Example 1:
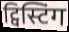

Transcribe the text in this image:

ट्विस्टिंग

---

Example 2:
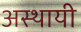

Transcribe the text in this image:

अस्थायी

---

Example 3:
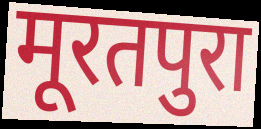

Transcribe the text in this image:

मूरतपुरा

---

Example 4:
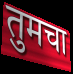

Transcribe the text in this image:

तुमचा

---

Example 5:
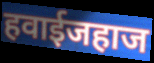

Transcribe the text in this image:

हवाईजहाज